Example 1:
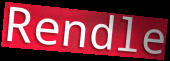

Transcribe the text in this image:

Rendle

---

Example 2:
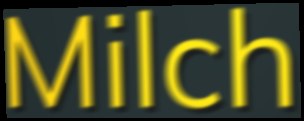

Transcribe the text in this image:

Milch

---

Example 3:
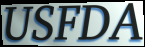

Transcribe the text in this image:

USFDA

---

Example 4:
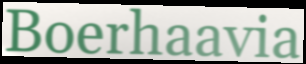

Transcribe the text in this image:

Boerhaavia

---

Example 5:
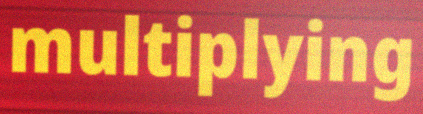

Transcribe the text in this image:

multiplying